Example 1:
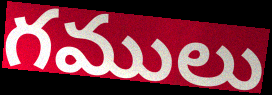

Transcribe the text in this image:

గములు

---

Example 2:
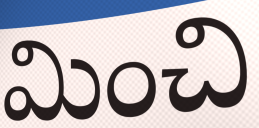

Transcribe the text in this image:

మించి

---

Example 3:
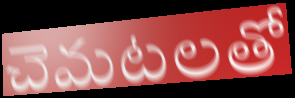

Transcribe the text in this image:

చెమటలతో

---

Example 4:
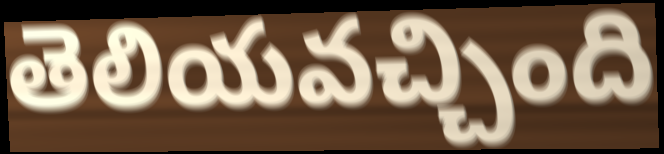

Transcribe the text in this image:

తెలియవచ్చింది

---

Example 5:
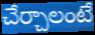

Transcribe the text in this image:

చేర్చాలంటే